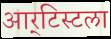
आर्टिस्टला